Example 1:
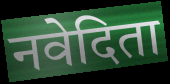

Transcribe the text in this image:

नवेदिता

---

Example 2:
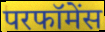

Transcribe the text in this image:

परफॉमेंस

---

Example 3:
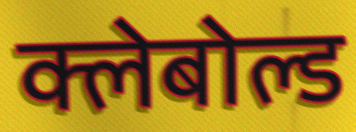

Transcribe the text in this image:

क्लेबोल्ड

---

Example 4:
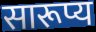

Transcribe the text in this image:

सारूप्य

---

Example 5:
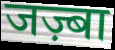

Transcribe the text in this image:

जज़्बा